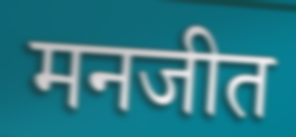
मनजीत